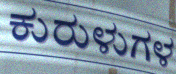
ಕುರುಳುಗಳ